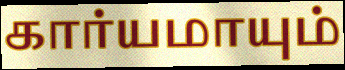
கார்யமாயும்